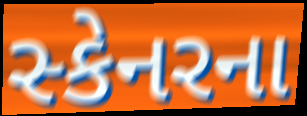
સ્કેનરના